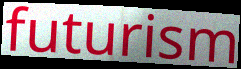
futurism